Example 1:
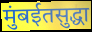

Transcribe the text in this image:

मुंबईतसुद्धा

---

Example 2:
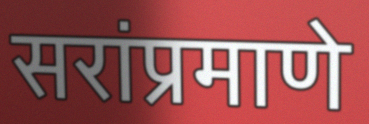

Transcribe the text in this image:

सरांप्रमाणे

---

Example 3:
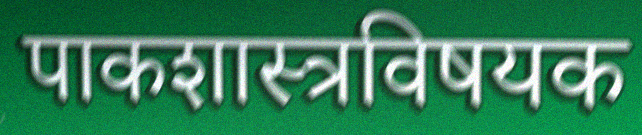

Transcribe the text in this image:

पाकशास्त्रविषयक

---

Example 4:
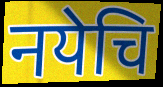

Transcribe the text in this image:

नयेचि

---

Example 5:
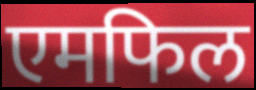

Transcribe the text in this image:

एमफिल